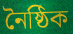
নৈষ্ঠিক